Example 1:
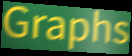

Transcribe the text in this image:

Graphs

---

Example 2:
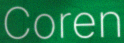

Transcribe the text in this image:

Coren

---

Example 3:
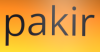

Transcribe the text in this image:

pakir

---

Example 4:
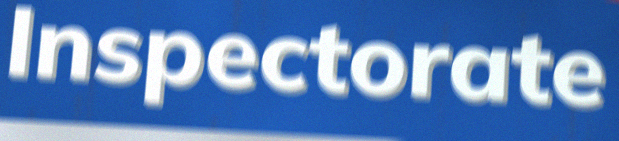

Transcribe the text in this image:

Inspectorate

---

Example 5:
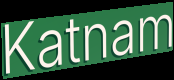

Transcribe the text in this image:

Katnam